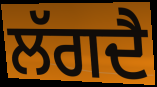
ਲੱਗਦੈ